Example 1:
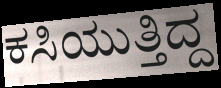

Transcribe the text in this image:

ಕಸಿಯುತ್ತಿದ್ದ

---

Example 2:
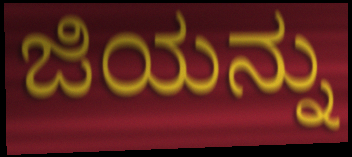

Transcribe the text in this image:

ಜಿಯನ್ನು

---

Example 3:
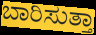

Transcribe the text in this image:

ಬಾರಿಸುತ್ತಾ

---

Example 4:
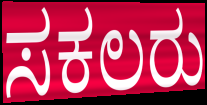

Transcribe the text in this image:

ಸಕಲರು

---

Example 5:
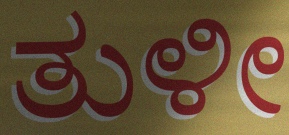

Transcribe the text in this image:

ತುಳೀ